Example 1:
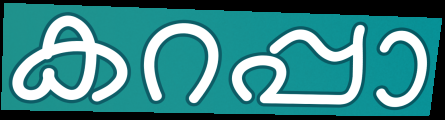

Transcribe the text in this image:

കറപ്പാ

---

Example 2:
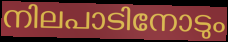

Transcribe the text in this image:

നിലപാടിനോടും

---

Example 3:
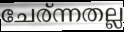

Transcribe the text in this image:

ചേര്ന്നതല്ല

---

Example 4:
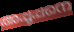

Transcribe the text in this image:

അപ്പൂപ്പനെ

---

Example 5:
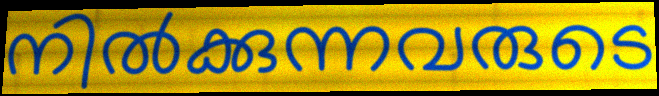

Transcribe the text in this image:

നിൽക്കുന്നവരുടെ